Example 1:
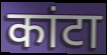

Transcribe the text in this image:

कांटा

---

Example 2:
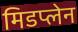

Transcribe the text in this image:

मिडप्लेन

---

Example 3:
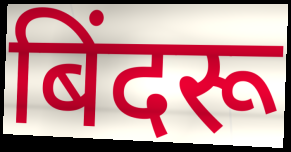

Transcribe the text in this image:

बिंदरू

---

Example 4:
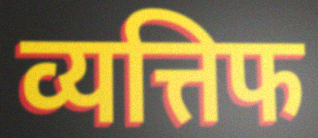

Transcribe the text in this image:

व्यत्तिफ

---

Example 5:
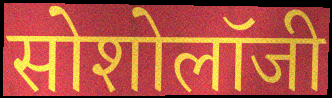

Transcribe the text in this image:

सोशोलॉजी